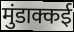
मुंडाक्कई